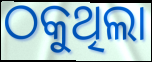
ଠକୁଥିଲା